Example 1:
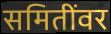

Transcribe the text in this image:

समितींवर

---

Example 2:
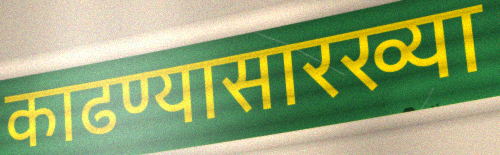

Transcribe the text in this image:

काढण्यासारख्या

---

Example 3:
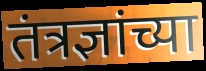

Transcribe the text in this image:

तंत्रज्ञांच्या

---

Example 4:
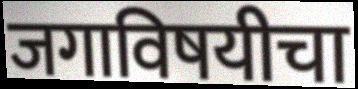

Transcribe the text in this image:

जगाविषयीचा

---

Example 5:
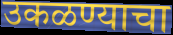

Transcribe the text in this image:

उकळण्याचा